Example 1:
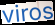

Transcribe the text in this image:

viros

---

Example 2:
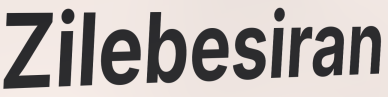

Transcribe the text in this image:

Zilebesiran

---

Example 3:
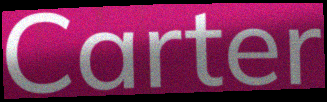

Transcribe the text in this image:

Carter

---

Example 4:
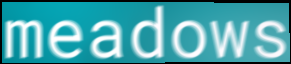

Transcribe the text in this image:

meadows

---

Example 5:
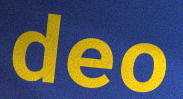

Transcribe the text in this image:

deo